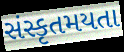
સંસ્કૃતમયતા